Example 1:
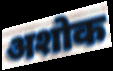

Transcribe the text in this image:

अशोक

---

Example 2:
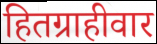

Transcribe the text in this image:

हितग्राहीवार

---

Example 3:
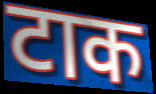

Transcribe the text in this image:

टाक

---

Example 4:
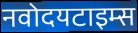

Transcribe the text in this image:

नवोदयटाइम्स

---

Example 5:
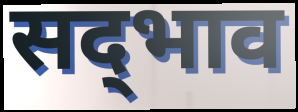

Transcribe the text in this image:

सद्‍भाव